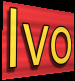
Ivo